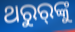
ଥରୁର୍‌ଙ୍କୁ